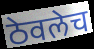
ठेवलेच